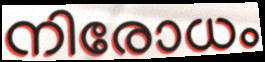
നിരോധം